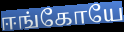
ஈங்கோயே